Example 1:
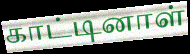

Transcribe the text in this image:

காட்டினாள்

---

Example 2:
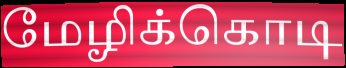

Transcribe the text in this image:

மேழிக்கொடி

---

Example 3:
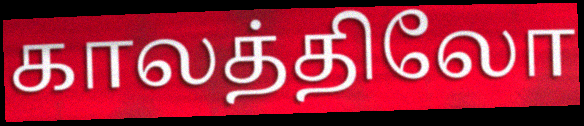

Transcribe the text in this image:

காலத்திலோ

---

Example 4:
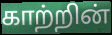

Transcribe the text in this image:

காற்றின்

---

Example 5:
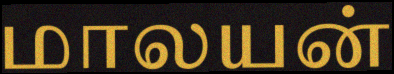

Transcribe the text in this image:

மாலயன்